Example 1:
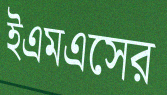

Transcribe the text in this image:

ইএমএসের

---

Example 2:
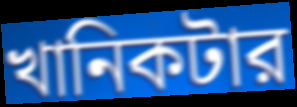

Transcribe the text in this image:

খানিকটার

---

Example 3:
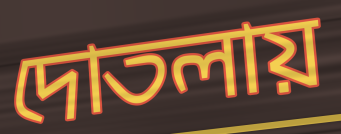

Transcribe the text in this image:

দোতলায়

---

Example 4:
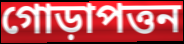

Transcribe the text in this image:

গোড়াপত্তন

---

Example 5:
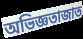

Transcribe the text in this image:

অভিজ্ঞতাজাত